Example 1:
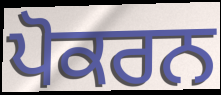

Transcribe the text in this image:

ਪੋਕਰਨ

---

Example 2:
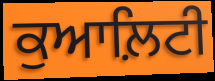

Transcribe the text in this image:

ਕੁਆਲ਼ਿਟੀ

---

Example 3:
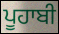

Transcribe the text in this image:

ਪੂਹਾਬੀ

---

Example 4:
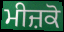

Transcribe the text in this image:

ਮੀਜ਼ਕੋ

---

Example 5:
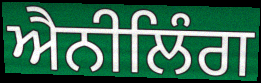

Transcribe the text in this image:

ਐਨੀਲਿੰਗ